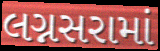
લગ્નસરામાં